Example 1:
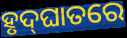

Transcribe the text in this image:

ହୃଦ୍‌ଘାତରେ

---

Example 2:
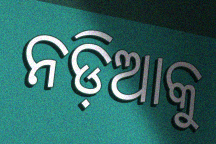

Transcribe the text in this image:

ନଡ଼ିଆକୁ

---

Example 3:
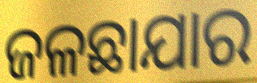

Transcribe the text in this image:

ଜଳଛାଯାର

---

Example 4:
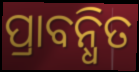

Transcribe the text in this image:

ପ୍ରାବନ୍ଧିତ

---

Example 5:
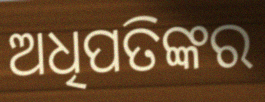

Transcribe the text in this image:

ଅଧିପତିଙ୍କର